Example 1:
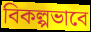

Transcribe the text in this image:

বিকল্পভাবে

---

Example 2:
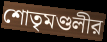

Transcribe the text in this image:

শোতৃমণ্ডলীর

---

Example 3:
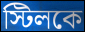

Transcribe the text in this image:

স্টিলকে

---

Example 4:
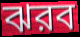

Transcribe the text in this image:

ঝরব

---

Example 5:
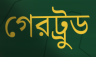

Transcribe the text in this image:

গেরট্রুড